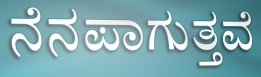
ನೆನಪಾಗುತ್ತವೆ